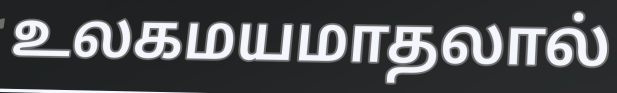
உலகமயமாதலால்